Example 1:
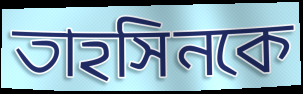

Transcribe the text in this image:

তাহসিনকে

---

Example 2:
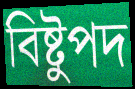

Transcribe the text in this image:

বিষ্টুপদ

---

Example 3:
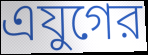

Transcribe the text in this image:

এযুগের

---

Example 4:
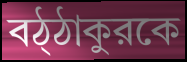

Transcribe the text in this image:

বঠ্ঠাকুরকে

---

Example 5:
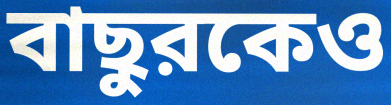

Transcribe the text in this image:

বাছুরকেও